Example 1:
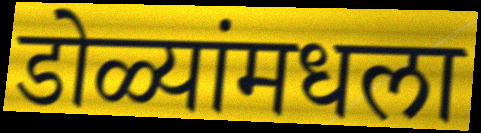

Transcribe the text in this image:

डोळ्यांमधला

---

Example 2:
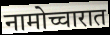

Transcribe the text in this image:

नामोच्चारात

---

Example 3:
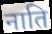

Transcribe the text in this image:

नाति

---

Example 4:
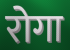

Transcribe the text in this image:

रोगा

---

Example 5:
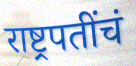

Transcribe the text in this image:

राष्ट्रपतींचं